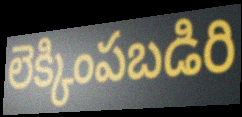
లెక్కింపబడిరి